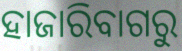
ହାଜାରିବାଗରୁ